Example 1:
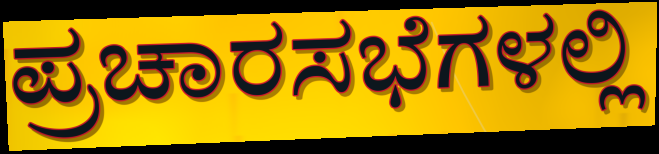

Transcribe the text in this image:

ಪ್ರಚಾರಸಭೆಗಳಲ್ಲಿ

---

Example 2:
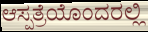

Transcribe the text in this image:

ಆಸ್ಪತ್ರೆಯೊಂದರಲ್ಲಿ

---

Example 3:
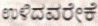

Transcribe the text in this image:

ಉಳಿದವರೇಕೆ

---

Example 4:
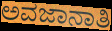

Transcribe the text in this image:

ಅವಜಾನಾತಿ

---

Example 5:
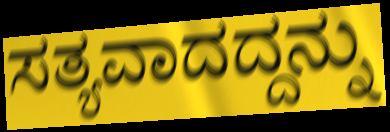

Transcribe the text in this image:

ಸತ್ಯವಾದದ್ದನ್ನು